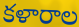
కళారాల